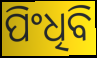
ପିଂଧିବି